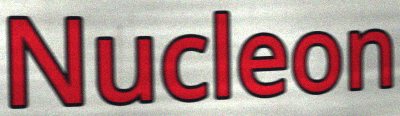
Nucleon